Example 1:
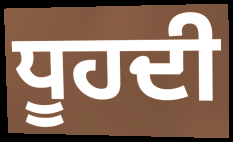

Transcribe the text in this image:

ਧੂਹਦੀ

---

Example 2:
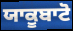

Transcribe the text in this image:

ਯਾਕੂਬਾਟੋ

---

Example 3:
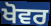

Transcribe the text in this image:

ਖੋਵਰ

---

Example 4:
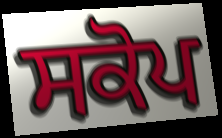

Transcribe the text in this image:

ਸਕੋਪ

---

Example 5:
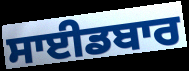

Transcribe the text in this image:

ਸਾਈਡਬਾਰ